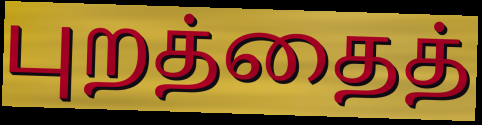
புறத்தைத்